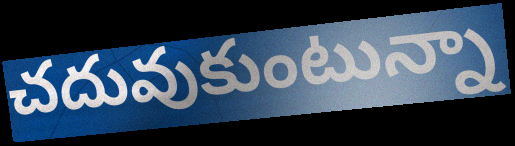
చదువుకుంటున్నా